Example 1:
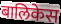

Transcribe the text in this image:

बालिकेस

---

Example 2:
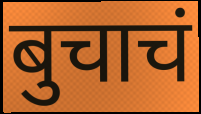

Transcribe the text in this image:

बुचाचं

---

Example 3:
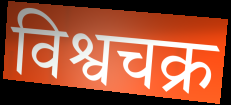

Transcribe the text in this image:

विश्वचक्र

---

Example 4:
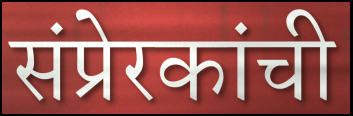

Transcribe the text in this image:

संप्रेरकांची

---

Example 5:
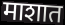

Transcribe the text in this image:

माशात